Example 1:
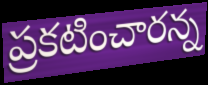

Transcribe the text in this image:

ప్రకటించారన్న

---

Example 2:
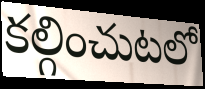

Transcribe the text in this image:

కల్గించుటలో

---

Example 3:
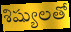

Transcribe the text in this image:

శిష్యులతో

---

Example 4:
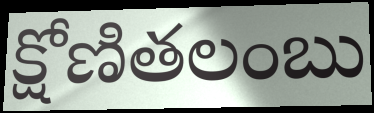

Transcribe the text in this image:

క్షోణితలంబు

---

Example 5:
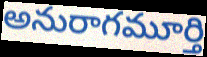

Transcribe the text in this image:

అనురాగమూర్తి